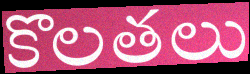
కొలతలు